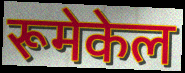
रूमेकेल